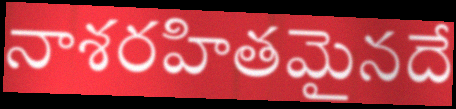
నాశరహితమైనదే